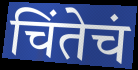
चिंतेचं